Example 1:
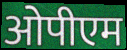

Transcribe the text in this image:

ओपीएम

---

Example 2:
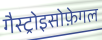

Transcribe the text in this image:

गैस्ट्रोइसोफ़ेगल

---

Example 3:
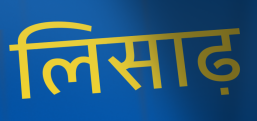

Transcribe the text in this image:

लिसाढ़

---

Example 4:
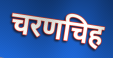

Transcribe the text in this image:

चरणचिह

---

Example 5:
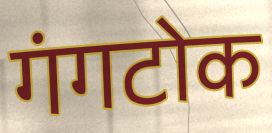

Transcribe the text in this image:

गंगटोक